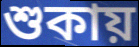
শুকায়